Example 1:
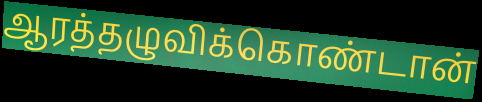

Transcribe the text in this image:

ஆரத்தழுவிக்கொண்டான்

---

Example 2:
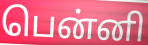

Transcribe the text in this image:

பென்னி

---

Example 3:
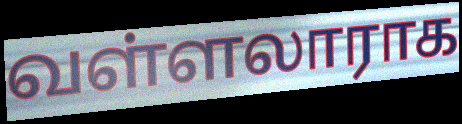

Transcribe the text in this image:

வள்ளலாராக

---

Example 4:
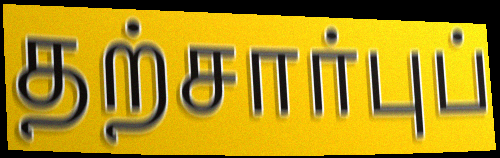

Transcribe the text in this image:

தற்சார்புப்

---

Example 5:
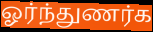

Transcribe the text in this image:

ஓர்ந்துணர்க